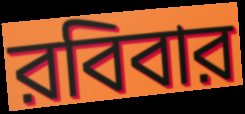
রবিবার